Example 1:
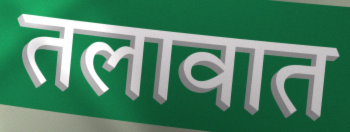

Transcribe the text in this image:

तलावात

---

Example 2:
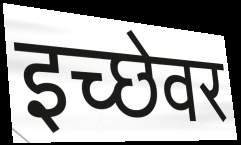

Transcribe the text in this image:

इच्छेवर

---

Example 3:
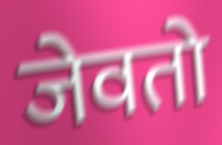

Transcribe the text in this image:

जेवतो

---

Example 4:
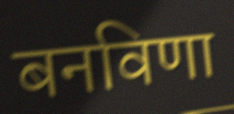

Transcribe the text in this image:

बनविणा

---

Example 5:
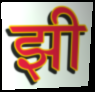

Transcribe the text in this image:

झी